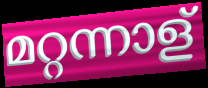
മറ്റന്നാള്